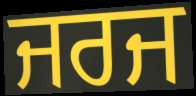
ਜਰਜ